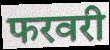
फरवरी